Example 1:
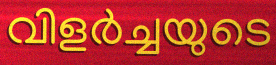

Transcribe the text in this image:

വിളർച്ചയുടെ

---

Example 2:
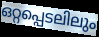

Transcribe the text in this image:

ഒറ്റപ്പെടലിലും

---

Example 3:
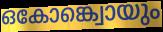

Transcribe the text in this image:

ഒകോങ്ക്വൊയും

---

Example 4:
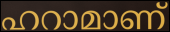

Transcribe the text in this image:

ഹറാമാണ്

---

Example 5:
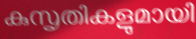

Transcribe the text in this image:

കുസൃതികളുമായി